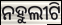
ନହୁଲୀଟି